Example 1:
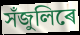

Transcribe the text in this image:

সঁজুলিৰে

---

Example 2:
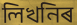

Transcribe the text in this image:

লিখনিৰ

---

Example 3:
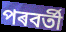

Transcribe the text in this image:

পৰবৰ্তী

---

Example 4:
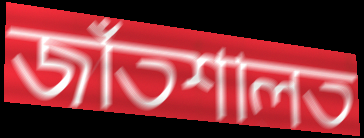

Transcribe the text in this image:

জাঁতশালত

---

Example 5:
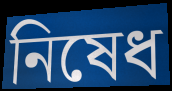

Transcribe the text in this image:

নিষেধ